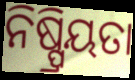
ନିଷ୍ପ୍ରିୟତା